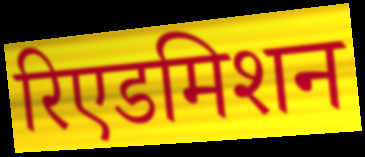
रिएडमिशन